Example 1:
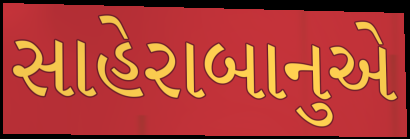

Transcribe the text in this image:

સાહેરાબાનુએ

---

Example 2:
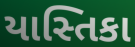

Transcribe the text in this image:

યાસ્તિકા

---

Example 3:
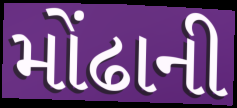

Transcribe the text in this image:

મોંઢાની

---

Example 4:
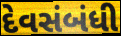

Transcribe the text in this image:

દેવસંબંધી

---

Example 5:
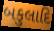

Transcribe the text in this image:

બકુલાદિ